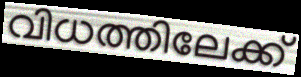
വിധത്തിലേക്ക്